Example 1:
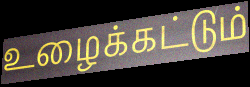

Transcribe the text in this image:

உழைக்கட்டும்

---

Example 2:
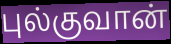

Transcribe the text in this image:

புல்குவான்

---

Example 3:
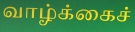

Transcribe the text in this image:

வாழ்க்கைச்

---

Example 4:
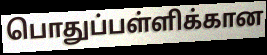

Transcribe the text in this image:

பொதுப்பள்ளிக்கான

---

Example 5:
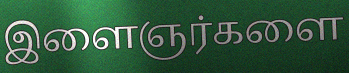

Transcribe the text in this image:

இளைஞர்களை